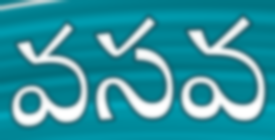
వసవ